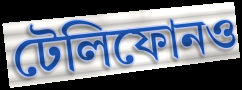
টেলিফোনও